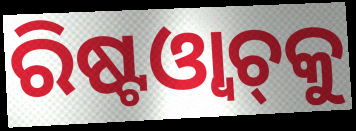
ରିଷ୍ଟଓ୍ୱାଚ୍‍କୁ